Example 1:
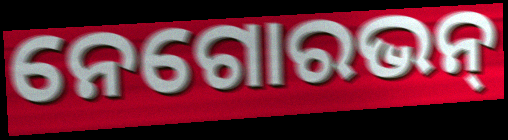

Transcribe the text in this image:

ନେଗୋରଭନ୍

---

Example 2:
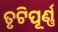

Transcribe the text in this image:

ତୃଟିପୂର୍ଣ୍ଣ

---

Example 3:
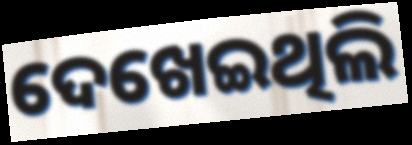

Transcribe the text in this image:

ଦେଖେଇଥିଲି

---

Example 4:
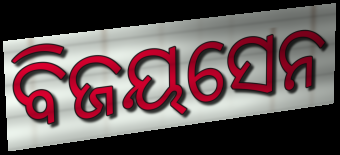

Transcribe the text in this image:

ବିଜୟସେନ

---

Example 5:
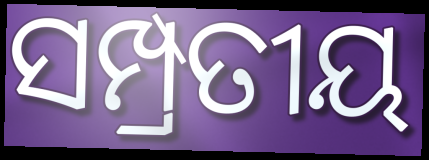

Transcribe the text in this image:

ସମ୍ପ୍ରତୀୟ